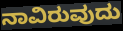
ನಾವಿರುವುದು